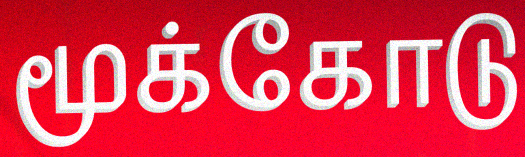
மூக்கோடு